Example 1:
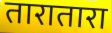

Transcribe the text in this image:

तारातारा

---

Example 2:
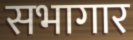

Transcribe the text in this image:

सभागार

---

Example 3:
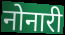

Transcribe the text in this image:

नोनारी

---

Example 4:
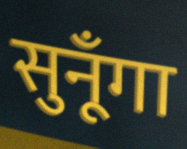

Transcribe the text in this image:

सुनूँगा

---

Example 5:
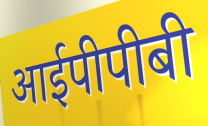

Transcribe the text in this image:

आईपीपीबी